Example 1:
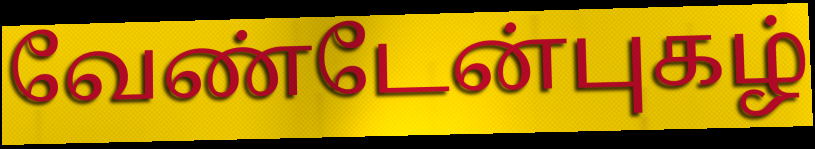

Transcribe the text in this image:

வேண்டேன்புகழ்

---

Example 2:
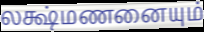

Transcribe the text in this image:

லக்ஷ்மணனையும்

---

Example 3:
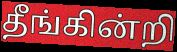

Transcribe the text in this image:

தீங்கின்றி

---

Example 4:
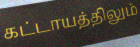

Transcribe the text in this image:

கட்டாயத்திலும்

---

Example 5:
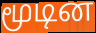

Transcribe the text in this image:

மூடின